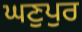
ਘਣੁਪੁਰ